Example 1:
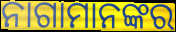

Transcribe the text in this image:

ନାଗାମାନଙ୍କର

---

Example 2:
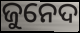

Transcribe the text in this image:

ଜୁନେଦ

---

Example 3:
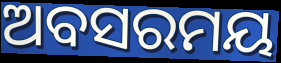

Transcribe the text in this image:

ଅବସରମୟ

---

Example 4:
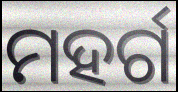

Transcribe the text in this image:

ମହର୍ଗ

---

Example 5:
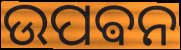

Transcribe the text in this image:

ଉପଵନ